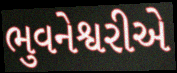
ભુવનેશ્વરીએ